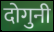
दोगुनी